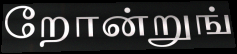
றோன்றுங்